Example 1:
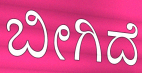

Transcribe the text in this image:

ಬೀಗಿದೆ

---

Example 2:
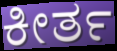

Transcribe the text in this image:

ಕೀರ್ತ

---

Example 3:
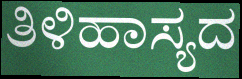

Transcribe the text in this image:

ತಿಳಿಹಾಸ್ಯದ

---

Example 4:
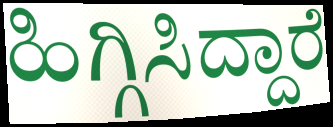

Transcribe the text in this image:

ಹಿಗ್ಗಿಸಿದ್ದಾರೆ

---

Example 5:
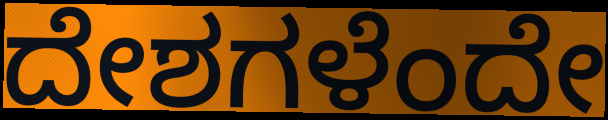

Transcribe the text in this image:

ದೇಶಗಳೆಂದೇ